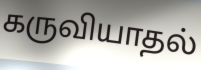
கருவியாதல்